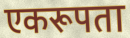
एकरूपता